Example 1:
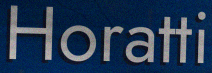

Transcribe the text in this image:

Horatti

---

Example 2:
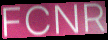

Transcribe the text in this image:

FCNR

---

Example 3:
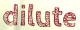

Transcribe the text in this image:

dilute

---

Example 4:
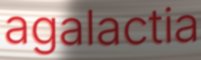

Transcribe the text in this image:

agalactia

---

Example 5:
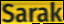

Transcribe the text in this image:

Sarak